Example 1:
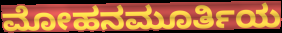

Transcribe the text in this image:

ಮೋಹನಮೂರ್ತಿಯ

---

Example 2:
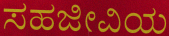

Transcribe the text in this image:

ಸಹಜೀವಿಯ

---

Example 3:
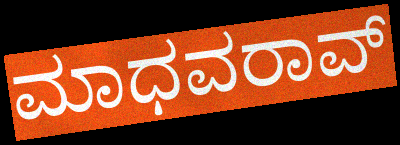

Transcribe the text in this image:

ಮಾಧವರಾವ್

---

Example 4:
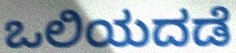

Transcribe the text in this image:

ಒಲಿಯದಡೆ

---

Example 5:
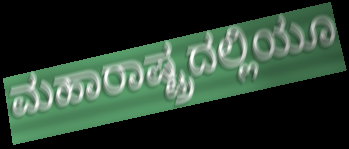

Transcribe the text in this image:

ಮಹಾರಾಷ್ಟ್ರದಲ್ಲಿಯೂ